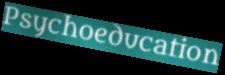
Psychoeducation